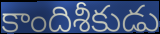
కాందిశీకుడు